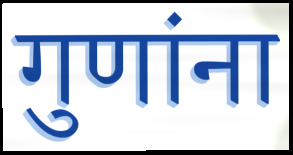
गुणांना